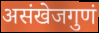
असंखेजगुणं